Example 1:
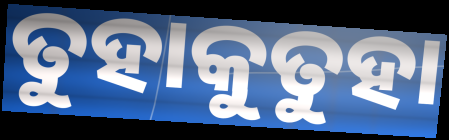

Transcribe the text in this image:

ତୁହାକୁତୁହା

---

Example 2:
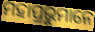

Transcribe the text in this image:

ମହାପ୍ରଭୁମାନେ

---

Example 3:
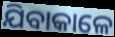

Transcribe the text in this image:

ଯିବାକାଳେ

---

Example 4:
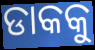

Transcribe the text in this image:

ଡାକକୁ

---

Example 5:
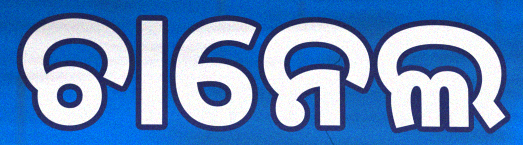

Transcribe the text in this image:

ଚାନେଲ